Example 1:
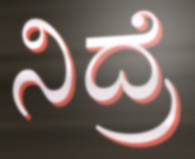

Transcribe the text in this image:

ನಿದ್ರೆ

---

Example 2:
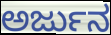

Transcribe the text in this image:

ಅರ್ಜುನ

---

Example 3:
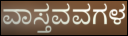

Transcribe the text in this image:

ವಾಸ್ತವವಗಳ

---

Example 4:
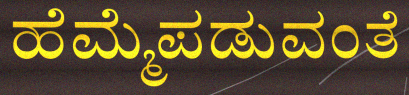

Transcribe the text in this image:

ಹೆಮ್ಮೆಪಡುವಂತೆ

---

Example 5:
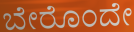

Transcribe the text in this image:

ಬೇರೊಂದೇ